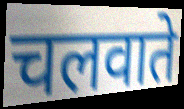
चलवाते